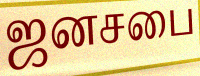
ஜனசபை